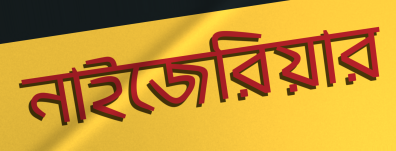
নাইজেরিয়ার